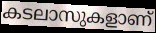
കടലാസുകളാണ്